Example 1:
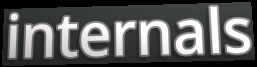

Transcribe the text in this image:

internals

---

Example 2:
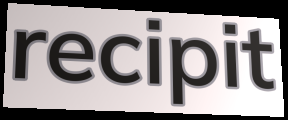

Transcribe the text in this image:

recipit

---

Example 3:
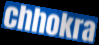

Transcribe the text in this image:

chhokra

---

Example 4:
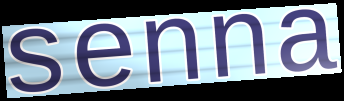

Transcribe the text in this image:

senna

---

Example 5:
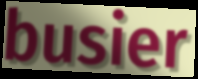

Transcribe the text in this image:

busier